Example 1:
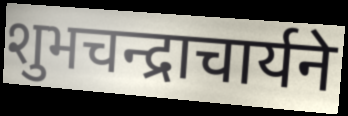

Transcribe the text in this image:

शुभचन्द्राचार्यने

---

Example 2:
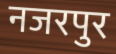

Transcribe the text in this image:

नजरपुर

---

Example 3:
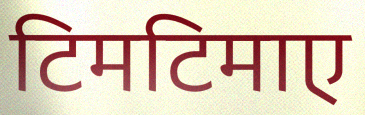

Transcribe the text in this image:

टिमटिमाए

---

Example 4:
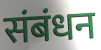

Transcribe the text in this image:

संबंधन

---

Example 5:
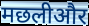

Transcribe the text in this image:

मछलीऔर